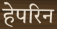
हेपरिन